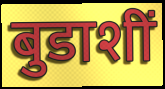
बुडाशीं